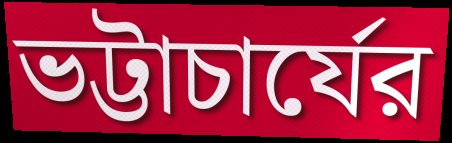
ভট্টাচার্যের